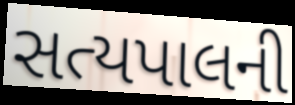
સત્યપાલની